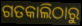
ଗତକାଲିଠାରୁ